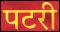
पटरी